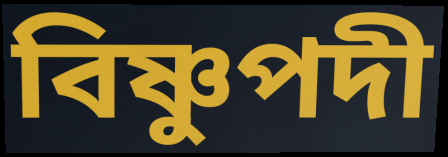
বিষ্ণুপদী